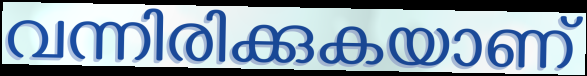
വന്നിരിക്കുകയാണ്